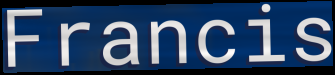
Francis